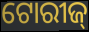
ଟୋରୀଜ୍